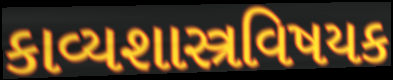
કાવ્યશાસ્ત્રવિષયક